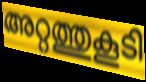
അറ്റത്തുകൂടി